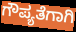
ಗೌಪ್ಯತೆಗಾಗಿ